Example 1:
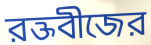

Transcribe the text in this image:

রক্তবীজের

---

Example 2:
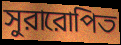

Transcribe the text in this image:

সুরারোপিত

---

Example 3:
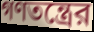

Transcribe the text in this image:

গণতন্ত্রের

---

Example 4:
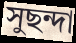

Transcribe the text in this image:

সুছন্দা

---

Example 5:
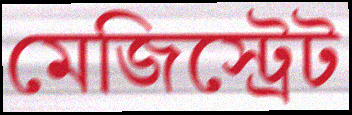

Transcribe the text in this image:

মেজিস্ট্রেট